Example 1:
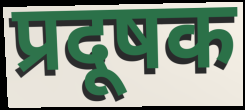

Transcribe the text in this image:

प्रदूषक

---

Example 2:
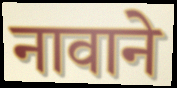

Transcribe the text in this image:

नावाने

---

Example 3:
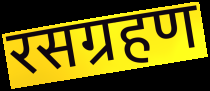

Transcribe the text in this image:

रसग्रहण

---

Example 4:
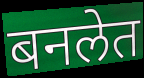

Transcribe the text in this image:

बनलेत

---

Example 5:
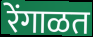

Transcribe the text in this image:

रेंगाळत